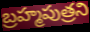
బ్రహ్మపుత్రని